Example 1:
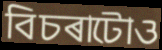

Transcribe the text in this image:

বিচৰাটোও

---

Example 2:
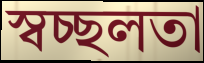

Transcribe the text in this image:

স্বচ্ছলতা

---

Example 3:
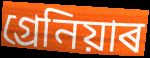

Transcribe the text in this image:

গ্ৰেনিয়াৰ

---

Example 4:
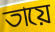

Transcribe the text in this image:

তায়ে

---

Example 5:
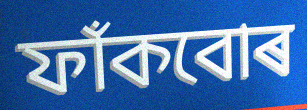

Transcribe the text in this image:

ফাঁকবোৰ